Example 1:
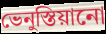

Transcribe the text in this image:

ভেনুস্তিয়ানো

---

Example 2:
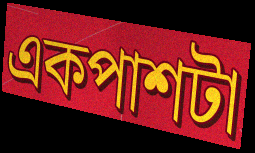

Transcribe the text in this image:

একপাশটা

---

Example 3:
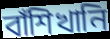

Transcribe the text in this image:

বাঁশিখানি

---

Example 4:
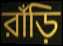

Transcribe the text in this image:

রাঁড়ি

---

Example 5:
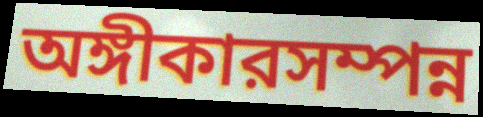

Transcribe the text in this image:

অঙ্গীকারসম্পন্ন